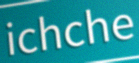
ichche